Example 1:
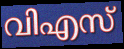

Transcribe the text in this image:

വിഎസ്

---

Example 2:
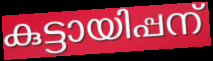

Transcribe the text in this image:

കുട്ടായിപ്പന്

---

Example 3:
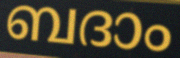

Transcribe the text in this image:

ബദാം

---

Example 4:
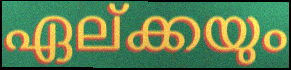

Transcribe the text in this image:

ഏല്ക്കയും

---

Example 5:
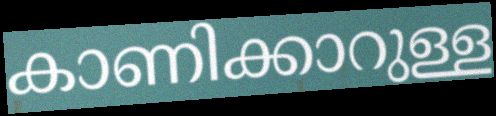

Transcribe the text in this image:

കാണിക്കാറുള്ള